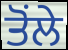
ਤੋਂਲੇ